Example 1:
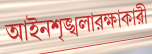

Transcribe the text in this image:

আইনশৃঙ্খলারক্ষাকারী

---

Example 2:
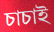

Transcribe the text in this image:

চাচাই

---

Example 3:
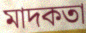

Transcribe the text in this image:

মাদকতা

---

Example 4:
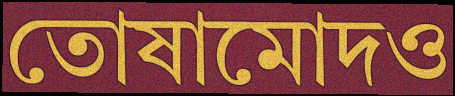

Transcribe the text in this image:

তোষামোদও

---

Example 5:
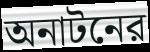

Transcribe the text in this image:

অনাটনের